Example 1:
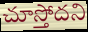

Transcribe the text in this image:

చూస్తోదని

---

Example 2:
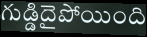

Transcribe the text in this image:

గుడ్డిదైపోయింది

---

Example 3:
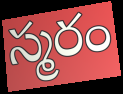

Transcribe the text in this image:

స్మరం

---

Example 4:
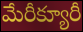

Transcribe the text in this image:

మేరీక్యూరీ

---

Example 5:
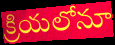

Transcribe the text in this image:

క్రియలోనూ